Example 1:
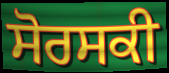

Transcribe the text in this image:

ਸੋਰਸਕੀ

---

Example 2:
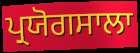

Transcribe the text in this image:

ਪ੍ਰਯੋਗਸਾਲਾ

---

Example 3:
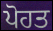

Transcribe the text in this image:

ਪੋਹਤ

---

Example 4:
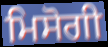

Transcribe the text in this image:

ਮਿਸੋਗੀ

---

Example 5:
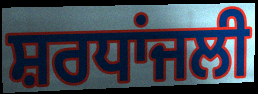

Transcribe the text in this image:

ਸ਼ਰਧਾਂਜਲੀ